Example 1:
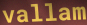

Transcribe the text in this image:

vallam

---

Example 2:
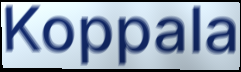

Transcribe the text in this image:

Koppala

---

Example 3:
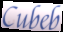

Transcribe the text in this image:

Cubeb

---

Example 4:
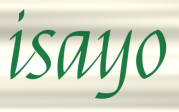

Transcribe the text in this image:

isayo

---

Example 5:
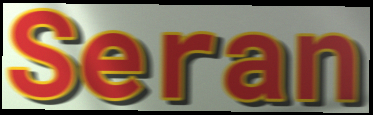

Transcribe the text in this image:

Seran